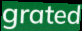
grated